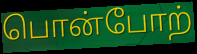
பொன்போற்